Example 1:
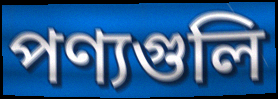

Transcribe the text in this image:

পণ্যগুলি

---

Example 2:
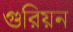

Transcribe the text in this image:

গুরিয়ন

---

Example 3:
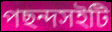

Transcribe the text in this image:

পছন্দসইটি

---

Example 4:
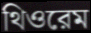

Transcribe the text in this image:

থিওরেম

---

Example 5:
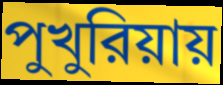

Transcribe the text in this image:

পুখুরিয়ায়